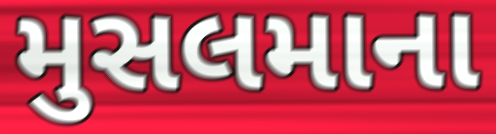
મુસલમાના